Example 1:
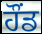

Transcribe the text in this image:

ਹੌਂਡ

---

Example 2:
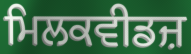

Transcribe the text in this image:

ਮਿਲਕਵੀਡਜ਼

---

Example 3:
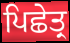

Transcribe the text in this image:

ਪਿਛੇਤ੍ਰ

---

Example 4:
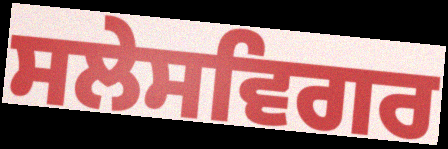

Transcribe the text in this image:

ਸਲੇਸਵਿਗਰ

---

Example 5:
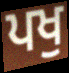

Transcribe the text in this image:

ਪਖੁ